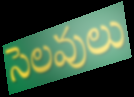
సెలవులు